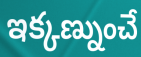
ఇక్కణ్నుంచే